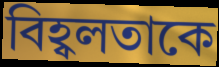
বিহ্বলতাকে